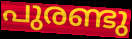
പുരണ്ടു